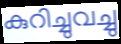
കുറിച്ചുവച്ചു